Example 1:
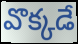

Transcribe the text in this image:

వొక్కడే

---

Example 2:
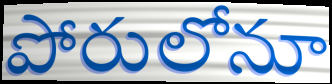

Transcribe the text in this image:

పోరులోనూ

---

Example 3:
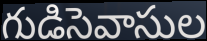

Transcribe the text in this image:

గుడిసెవాసుల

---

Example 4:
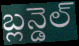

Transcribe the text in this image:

బ్లన్డెల్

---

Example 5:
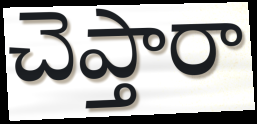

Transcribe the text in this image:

చెప్తారా